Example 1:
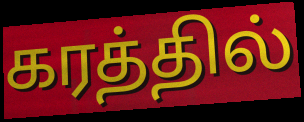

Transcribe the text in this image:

கரத்தில்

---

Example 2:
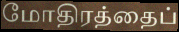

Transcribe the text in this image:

மோதிரத்தைப்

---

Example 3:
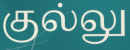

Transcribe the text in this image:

குல்லு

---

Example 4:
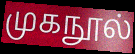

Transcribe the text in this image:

முகநூல்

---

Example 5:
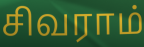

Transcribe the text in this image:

சிவராம்